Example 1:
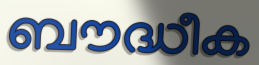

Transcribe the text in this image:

ബൗദ്ധീക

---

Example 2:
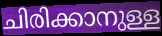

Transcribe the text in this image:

ചിരിക്കാനുള്ള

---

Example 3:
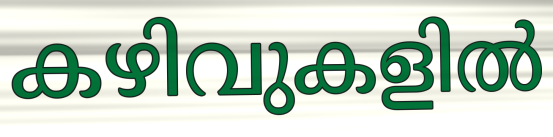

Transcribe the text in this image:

കഴിവുകളിൽ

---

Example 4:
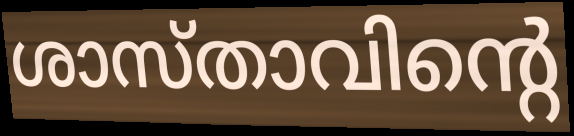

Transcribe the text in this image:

ശാസ്താവിന്റെ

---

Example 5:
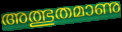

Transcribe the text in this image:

അത്ഭുതമാണു